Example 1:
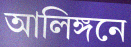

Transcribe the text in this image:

আলিঙ্গনে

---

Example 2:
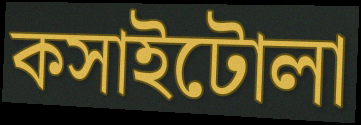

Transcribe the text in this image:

কসাইটোলা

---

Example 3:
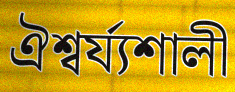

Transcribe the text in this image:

ঐশ্বর্য্যশালী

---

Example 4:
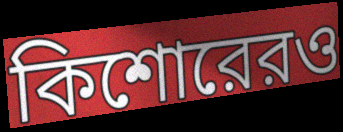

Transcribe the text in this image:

কিশোরেরও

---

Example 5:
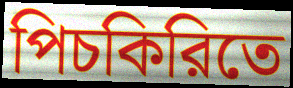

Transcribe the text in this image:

পিচকিরিতে